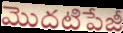
మొదటిపేజీ